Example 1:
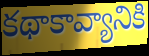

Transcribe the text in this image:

కథాకావ్యానికి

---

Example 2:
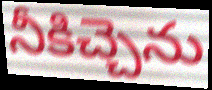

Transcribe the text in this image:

నీకిచ్చెను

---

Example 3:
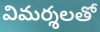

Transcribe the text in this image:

విమర్శలతో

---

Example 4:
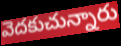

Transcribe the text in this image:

వెదకుచున్నారు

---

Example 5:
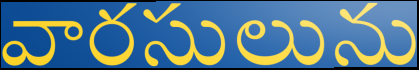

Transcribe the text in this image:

వారసులును